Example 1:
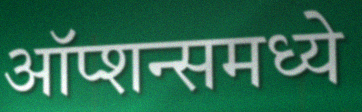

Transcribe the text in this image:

ऑप्शन्समध्ये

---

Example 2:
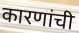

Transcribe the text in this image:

कारणांची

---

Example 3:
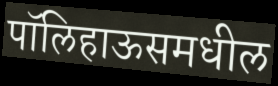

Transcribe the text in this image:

पॉलिहाऊसमधील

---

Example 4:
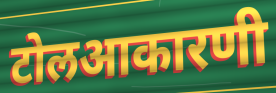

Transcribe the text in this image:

टोलआकारणी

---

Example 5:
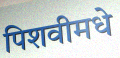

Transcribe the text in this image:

पिशवीमधे